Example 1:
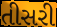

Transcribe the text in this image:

તીસરી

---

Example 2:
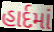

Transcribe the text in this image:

હાર્દમાં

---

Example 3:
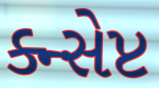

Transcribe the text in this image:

ક્ન્સેપ્ટ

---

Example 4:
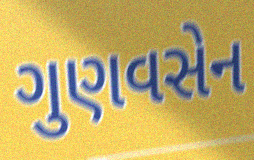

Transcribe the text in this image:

ગુણવસેન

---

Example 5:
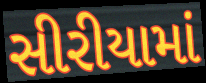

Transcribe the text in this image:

સીરીયામાં